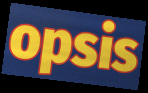
opsis